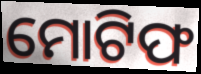
ମୋଟିଫ